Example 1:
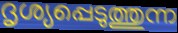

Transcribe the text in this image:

ദൃശ്യപ്പെടുത്തുന്ന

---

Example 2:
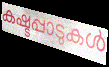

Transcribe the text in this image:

കഷ്ടപ്പാടുകൾ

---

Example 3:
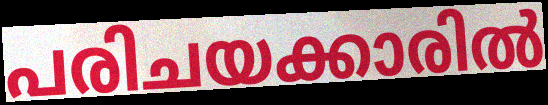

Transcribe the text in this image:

പരിചയക്കാരിൽ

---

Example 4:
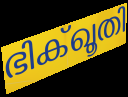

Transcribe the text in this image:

ഭിക്ഖൂതി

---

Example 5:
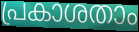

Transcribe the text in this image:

പ്രകാശതാം